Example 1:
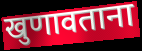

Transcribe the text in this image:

खुणावताना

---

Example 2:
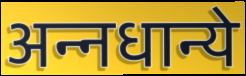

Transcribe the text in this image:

अन्नधान्ये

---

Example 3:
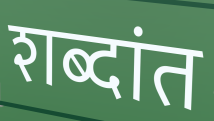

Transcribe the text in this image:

शब्दांत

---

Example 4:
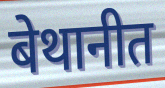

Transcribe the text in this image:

बेथानीत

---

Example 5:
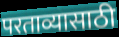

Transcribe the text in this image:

परताव्यासाठी